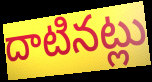
దాటినట్లు